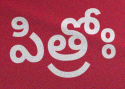
పిత్రోః